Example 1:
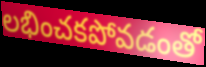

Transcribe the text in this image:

లభించకపోవడంతో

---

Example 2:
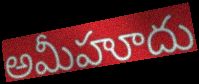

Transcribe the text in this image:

అమీహూదు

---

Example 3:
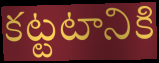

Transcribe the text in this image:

కట్టటానికి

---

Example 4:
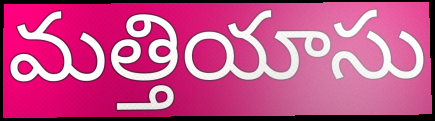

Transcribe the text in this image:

మత్తియాసు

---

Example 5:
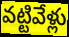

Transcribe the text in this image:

వట్టివేళ్లు